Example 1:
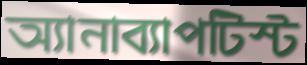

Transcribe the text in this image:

অ্যানাব্যাপটিস্ট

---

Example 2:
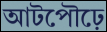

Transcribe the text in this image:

আটপৌঢ়ে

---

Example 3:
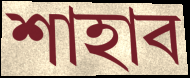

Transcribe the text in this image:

শাহাব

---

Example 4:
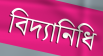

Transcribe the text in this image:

বিদ্যানিধি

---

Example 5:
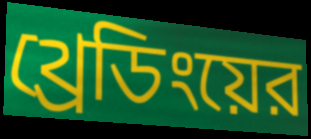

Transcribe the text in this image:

থ্রেডিংয়ের